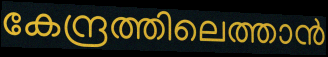
കേന്ദ്രത്തിലെത്താൻ